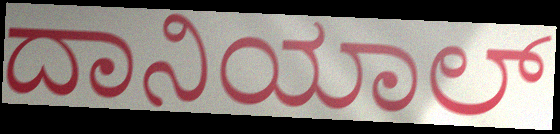
ದಾನಿಯಾಲ್